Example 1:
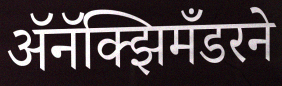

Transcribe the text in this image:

ॲनॅक्झिमँडरने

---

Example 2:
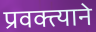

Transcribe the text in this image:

प्रवक्त्याने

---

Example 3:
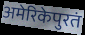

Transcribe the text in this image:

अमेरिकेपुरतं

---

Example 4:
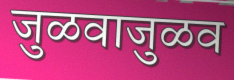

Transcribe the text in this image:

जुळवाजुळव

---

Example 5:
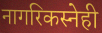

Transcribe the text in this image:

नागरिकस्नेही